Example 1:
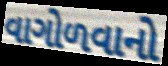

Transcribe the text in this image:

વાગોળવાનો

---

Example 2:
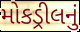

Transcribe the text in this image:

મોકડ્રીલનું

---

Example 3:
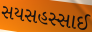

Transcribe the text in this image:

સયસહસ્સાઈ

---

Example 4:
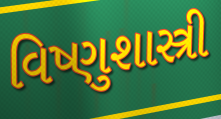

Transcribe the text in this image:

વિષ્ણુશાસ્ત્રી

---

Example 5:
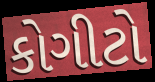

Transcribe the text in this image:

કોગીટો